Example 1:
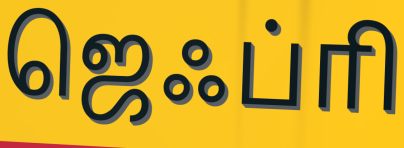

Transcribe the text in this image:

ஜெஃப்ரி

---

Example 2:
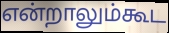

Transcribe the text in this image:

என்றாலும்கூட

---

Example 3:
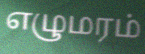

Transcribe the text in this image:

எழுமரம்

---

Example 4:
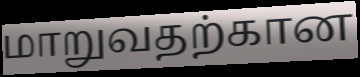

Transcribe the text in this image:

மாறுவதற்கான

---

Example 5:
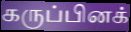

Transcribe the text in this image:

கருப்பினக்